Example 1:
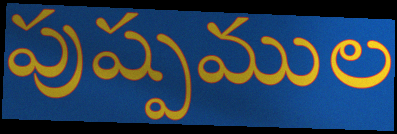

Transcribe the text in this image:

పుష్పముల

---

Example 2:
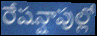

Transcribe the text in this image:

రేషన్షాపుల్లో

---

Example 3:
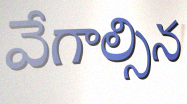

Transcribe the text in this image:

వేగాల్సిన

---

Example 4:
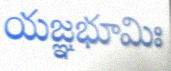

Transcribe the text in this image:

యజ్ఞభూమిః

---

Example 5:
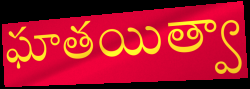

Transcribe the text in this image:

ఘాతయిత్వా